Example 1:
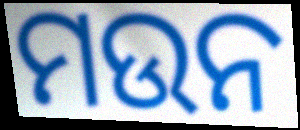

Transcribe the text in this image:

ମଉନ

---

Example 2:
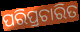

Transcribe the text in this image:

ପରିପ୍ରଚାରିତ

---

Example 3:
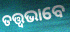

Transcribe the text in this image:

ତତ୍ତ୍ଵଭାବେ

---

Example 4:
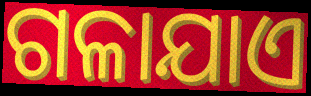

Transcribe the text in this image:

ଗଳାଯାଏ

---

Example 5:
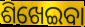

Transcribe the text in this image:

ଶିଖେଇବା